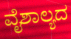
ವೈಶಾಲ್ಯದ